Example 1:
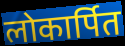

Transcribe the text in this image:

लोकार्पित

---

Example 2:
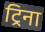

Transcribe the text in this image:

ट्रिना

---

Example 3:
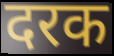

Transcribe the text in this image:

दरक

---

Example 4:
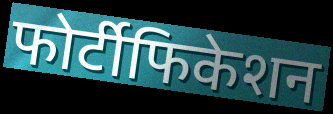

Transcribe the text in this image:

फोर्टीफिकेशन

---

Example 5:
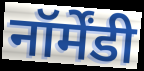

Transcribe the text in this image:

नॉर्मेंडी